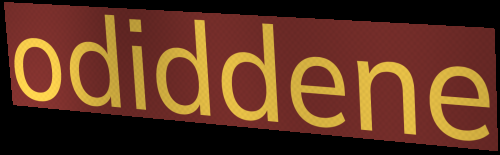
odiddene